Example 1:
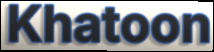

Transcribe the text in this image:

Khatoon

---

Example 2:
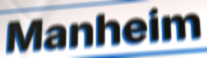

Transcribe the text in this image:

Manheim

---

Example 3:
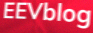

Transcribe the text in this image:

EEVblog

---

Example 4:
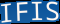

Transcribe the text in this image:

IFIS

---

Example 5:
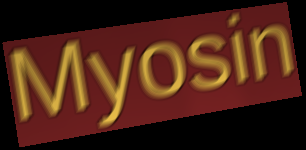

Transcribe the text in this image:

Myosin